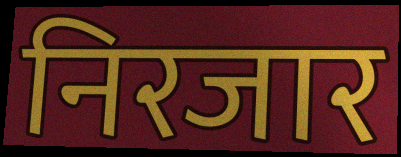
निरजार